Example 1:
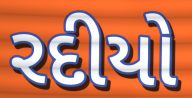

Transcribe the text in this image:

રદીયો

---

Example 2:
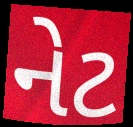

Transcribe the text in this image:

નેટ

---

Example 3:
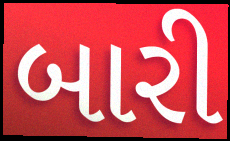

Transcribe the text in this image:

બારી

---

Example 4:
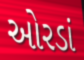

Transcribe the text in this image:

ઓરડાં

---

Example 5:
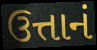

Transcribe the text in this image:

ઉત્તાનં